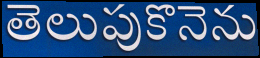
తెలుపుకొనెను